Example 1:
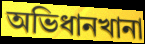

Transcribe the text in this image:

অভিধানখানা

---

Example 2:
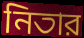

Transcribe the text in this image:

নিতার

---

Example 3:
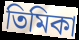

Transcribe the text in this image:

তিমিকা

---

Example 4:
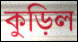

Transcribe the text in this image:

কুড়িল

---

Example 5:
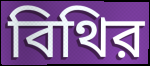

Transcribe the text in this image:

বিথির